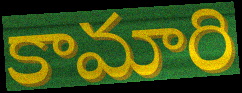
కామారి